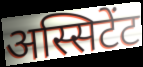
अस्सिटेंट